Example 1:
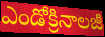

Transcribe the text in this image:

ఎండోక్రినాలజీ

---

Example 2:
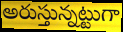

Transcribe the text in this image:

అరుస్తున్నట్టుగా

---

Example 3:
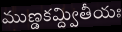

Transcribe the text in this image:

ముణ్డకమ్ద్వితీయః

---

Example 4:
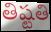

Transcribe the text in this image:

తిష్టతి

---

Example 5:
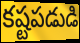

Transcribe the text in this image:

కష్టపడుడి